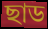
ছাড